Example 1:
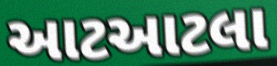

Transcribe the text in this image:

આટઆટલા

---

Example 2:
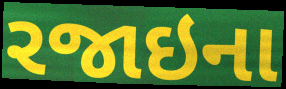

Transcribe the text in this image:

રજાઇના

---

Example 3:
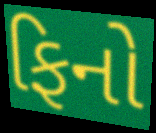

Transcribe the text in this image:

ફિનો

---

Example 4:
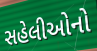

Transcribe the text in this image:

સહેલીઓનો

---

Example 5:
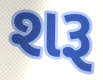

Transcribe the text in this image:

શરૂ